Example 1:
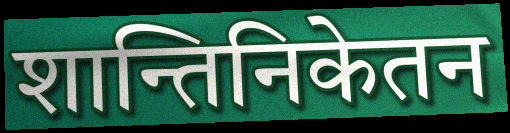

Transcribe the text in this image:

शान्तिनिकेतन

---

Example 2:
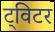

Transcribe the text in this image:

ट्विटर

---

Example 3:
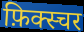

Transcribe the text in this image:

फ़िक्स्चर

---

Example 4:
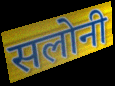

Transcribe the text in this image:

सलोनी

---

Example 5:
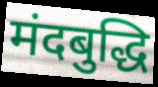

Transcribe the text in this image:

मंदबुद्धि